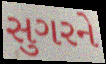
સુગરને